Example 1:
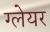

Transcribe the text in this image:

ग्लेयर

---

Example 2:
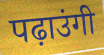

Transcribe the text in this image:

पढ़ाउंगी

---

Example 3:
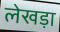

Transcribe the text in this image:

लेखड़ा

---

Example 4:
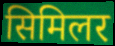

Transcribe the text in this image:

सिमिलर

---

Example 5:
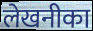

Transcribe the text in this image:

लेखनीका